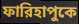
ফারিহাপুকে